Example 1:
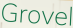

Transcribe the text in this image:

Grovel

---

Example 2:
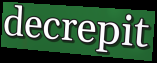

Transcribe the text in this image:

decrepit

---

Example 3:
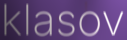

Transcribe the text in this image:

klasov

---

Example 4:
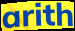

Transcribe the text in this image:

arith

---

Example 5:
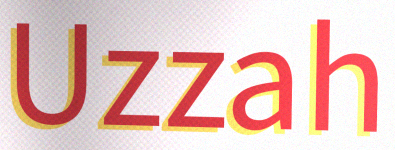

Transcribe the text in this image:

Uzzah